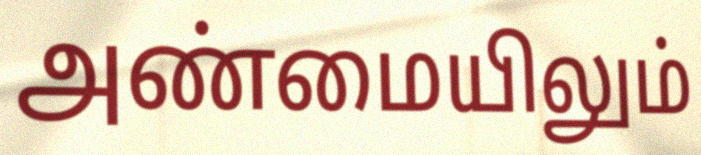
அண்மையிலும்